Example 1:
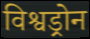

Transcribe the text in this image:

विश्वड्रोन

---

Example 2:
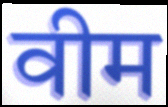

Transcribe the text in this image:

वीम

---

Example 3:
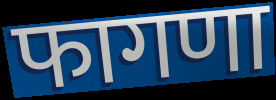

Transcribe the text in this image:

फागणा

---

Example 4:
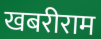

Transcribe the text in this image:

खबरीराम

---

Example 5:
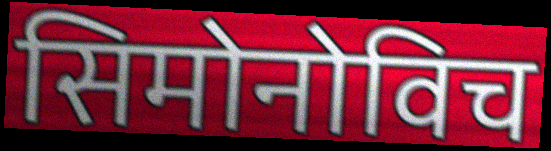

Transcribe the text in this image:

सिमोनोविच